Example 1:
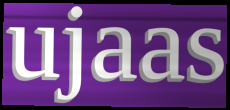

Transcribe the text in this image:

ujaas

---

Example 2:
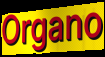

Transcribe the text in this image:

Organo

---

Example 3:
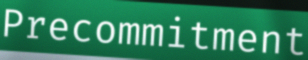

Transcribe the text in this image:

Precommitment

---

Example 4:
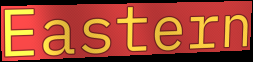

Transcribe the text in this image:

Eastern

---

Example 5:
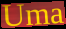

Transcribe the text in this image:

Uma